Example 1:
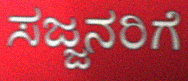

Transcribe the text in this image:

ಸಜ್ಜನರಿಗೆ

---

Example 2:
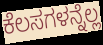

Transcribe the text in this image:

ಕೆಲಸಗಳನ್ನೆಲ್ಲ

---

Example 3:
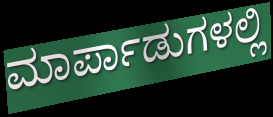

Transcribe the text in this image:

ಮಾರ್ಪಾಡುಗಳಲ್ಲಿ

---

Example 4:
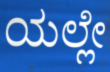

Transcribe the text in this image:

ಯಲ್ಲೇ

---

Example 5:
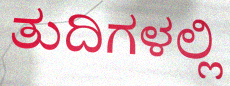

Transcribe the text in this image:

ತುದಿಗಳಲ್ಲಿ